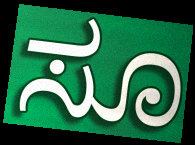
ಸೂ